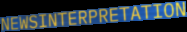
NEWSINTERPRETATION